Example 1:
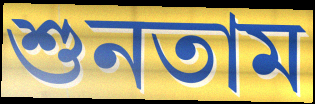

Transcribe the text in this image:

শুনতাম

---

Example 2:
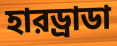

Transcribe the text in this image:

হারড্রাডা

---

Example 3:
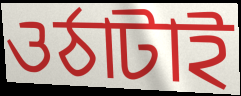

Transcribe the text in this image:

ওঠাটাই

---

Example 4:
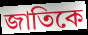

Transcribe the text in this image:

জাতিকে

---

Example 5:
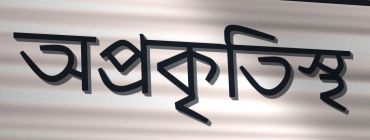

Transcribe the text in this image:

অপ্রকৃতিস্থ